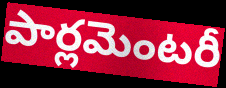
పార్లమెంటరీ